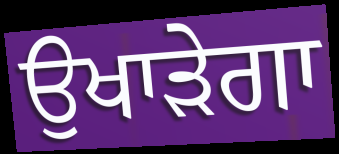
ਉਖਾੜੇਗਾ